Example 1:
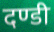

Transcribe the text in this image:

दण्डी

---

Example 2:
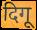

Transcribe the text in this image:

दिगू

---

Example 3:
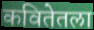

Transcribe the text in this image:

कवितेतला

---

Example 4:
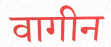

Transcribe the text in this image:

वागीन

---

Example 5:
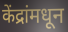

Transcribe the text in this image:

केंद्रांमधून